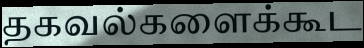
தகவல்களைக்கூட